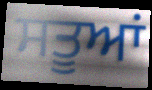
ਸਤੂਆਂ